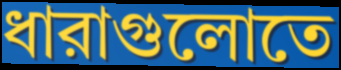
ধারাগুলোতে